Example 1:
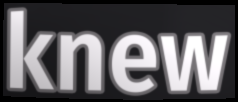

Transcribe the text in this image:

knew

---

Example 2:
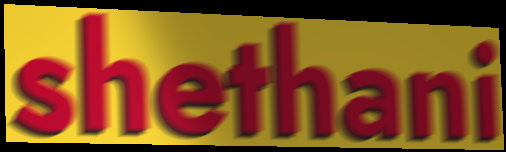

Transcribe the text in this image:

shethani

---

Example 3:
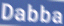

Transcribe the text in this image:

Dabba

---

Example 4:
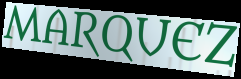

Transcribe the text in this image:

MARQUEZ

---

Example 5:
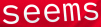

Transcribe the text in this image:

seems